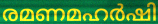
രമണമഹർഷി